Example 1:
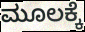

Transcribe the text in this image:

ಮೂಲಕ್ಕೆ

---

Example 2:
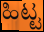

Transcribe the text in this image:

ಹಿಟ್ಟ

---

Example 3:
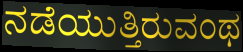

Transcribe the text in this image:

ನಡೆಯುತ್ತಿರುವಂಥ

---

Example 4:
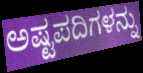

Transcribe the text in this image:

ಅಷ್ಟಪದಿಗಳನ್ನು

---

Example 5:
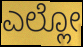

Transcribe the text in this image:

ಎಲ್ಲೋ